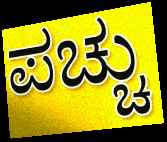
ಪಚ್ಚು